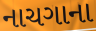
નાચગાના